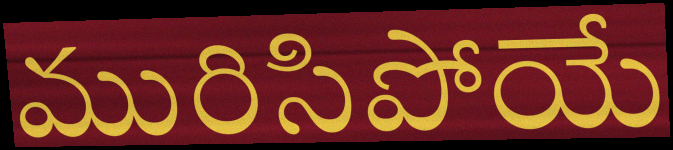
మురిసిపోయే